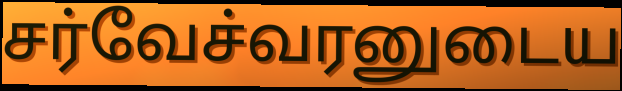
சர்வேச்வரனுடைய